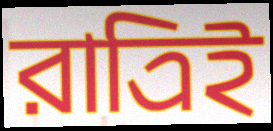
রাত্রিই